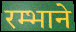
रम्भाने